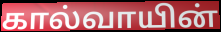
கால்வாயின்